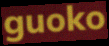
guoko